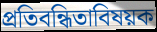
প্রতিবন্ধিতাবিষয়ক